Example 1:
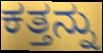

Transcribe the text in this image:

ಕತ್ತನ್ನು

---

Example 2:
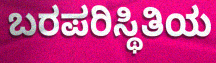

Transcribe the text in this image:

ಬರಪರಿಸ್ಥಿತಿಯ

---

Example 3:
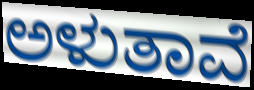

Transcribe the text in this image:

ಅಳುತಾವೆ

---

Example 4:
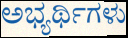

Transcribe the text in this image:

ಅಭ್ಯರ್ಥಿಗಳು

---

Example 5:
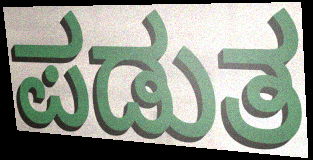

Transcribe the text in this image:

ಪಡುತ